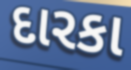
દારકા